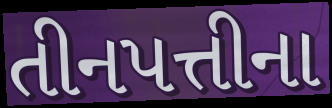
તીનપત્તીના